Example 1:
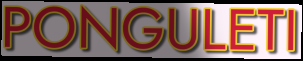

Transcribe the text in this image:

PONGULETI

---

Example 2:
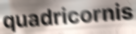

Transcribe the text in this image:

quadricornis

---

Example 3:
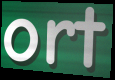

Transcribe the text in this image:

ort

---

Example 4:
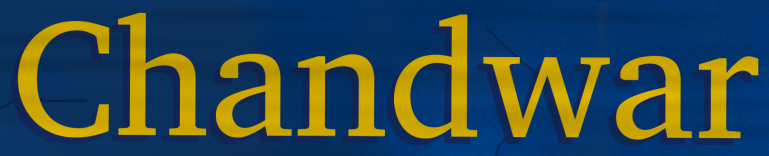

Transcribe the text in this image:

Chandwar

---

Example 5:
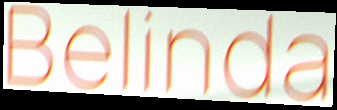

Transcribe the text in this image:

Belinda